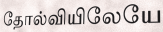
தோல்வியிலேயே